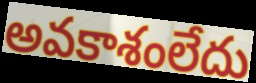
అవకాశంలేదు